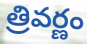
త్రివర్ణం